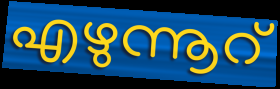
എഴുന്നൂറ്